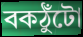
বকঠুঁটো